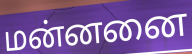
மன்னனை